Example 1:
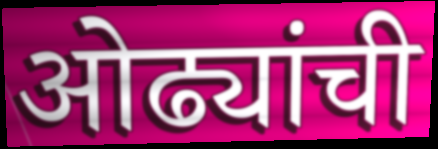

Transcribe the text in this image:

ओढ्यांची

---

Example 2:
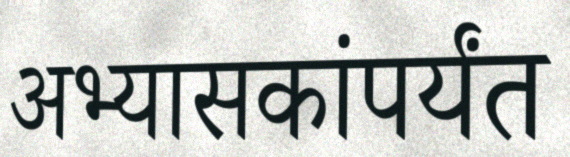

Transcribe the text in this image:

अभ्यासकांपर्यंत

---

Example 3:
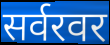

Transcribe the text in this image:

सर्वरवर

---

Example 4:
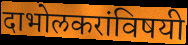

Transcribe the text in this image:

दाभोलकरांविषयी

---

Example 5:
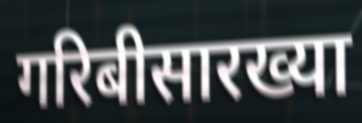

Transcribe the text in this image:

गरिबीसारख्या